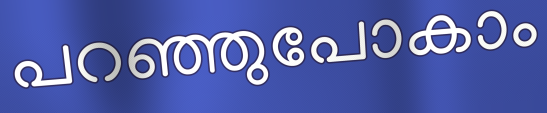
പറഞ്ഞുപോകാം